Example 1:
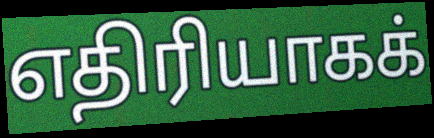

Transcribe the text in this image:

எதிரியாகக்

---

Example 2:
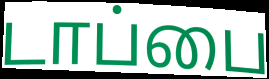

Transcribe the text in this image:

டாப்பை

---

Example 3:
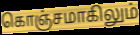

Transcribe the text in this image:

கொஞ்சமாகிலும்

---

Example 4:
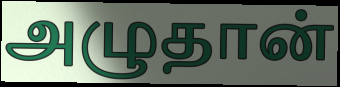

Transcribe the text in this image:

அழுதான்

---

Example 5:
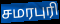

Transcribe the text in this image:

சமரபுரி